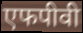
एफपीवी